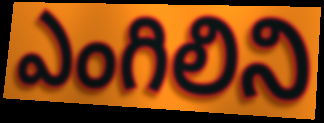
ఎంగిలిని